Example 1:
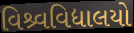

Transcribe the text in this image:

વિશ્ર્વવિદ્યાલયો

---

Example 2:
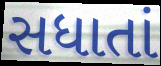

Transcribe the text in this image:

સધાતાં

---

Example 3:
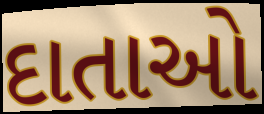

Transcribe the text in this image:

દાતાઓ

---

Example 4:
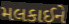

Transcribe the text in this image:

મલકાઈને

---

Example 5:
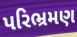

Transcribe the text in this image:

પરિભ્રમણ